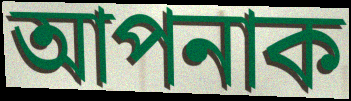
আপনাক